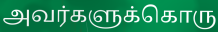
அவர்களுக்கொரு